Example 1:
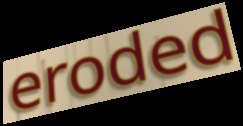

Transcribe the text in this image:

eroded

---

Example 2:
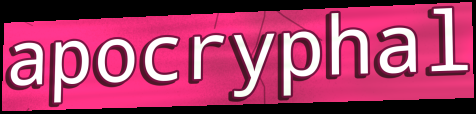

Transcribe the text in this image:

apocryphal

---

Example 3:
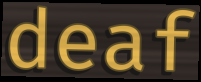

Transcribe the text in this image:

deaf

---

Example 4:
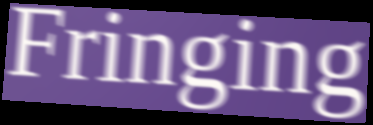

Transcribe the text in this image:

Fringing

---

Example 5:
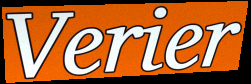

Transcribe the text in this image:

Verier